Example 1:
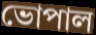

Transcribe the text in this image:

ভোপাল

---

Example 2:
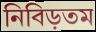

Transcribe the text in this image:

নিবিড়তম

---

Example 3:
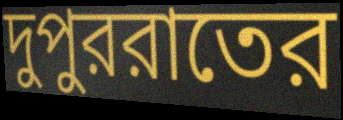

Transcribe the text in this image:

দুপুররাতের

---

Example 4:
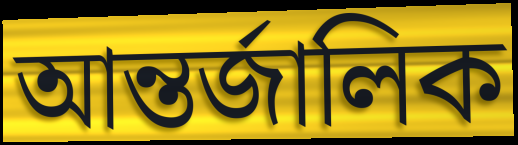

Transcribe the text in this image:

আন্তর্জালিক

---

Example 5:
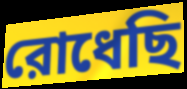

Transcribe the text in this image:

রোধেছি